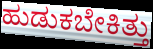
ಹುಡುಕಬೇಕಿತ್ತು